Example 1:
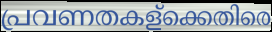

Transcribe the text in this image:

പ്രവണതകള്ക്കെതിരെ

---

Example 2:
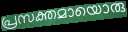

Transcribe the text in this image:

പ്രസക്തമായൊരു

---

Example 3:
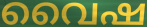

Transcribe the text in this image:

വൈഷ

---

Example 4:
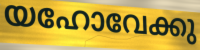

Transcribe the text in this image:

യഹോവേക്കു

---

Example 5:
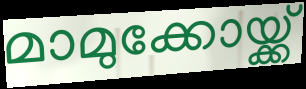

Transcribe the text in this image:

മാമുക്കോയ്ക്ക്